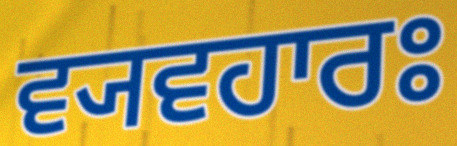
ਵ੍ਯਵਹਾਰਃ